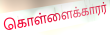
கொள்ளைக்காரர்